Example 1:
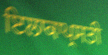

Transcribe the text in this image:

ਇਲਾਕਾਪ੍ਰਸਤੀ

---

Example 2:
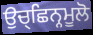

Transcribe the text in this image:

ਉਚ੍ਛਿਨ੍ਨਮੂਲੋ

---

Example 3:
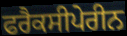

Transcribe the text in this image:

ਫਰੈਕਸੀਪੇਰੀਨ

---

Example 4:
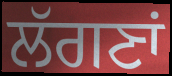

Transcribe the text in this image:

ਲੱਗਣਾਂ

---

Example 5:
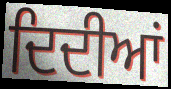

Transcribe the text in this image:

ਦਿਦੀਆਂ